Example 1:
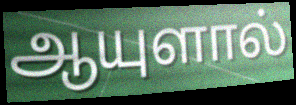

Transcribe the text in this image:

ஆயுளால்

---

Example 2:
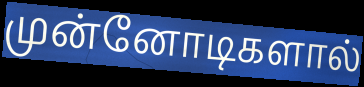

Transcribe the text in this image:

முன்னோடிகளால்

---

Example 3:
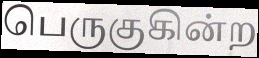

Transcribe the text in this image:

பெருகுகின்ற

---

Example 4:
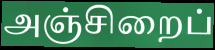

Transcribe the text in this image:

அஞ்சிறைப்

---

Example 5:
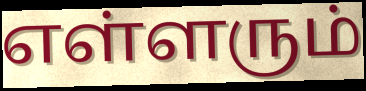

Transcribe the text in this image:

எள்ளரும்